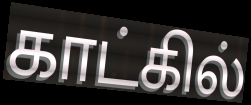
காட்கில்